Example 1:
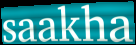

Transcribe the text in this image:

saakha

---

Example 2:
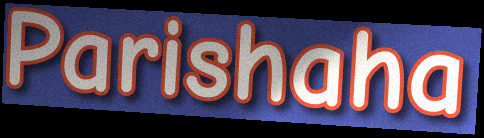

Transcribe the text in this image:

Parishaha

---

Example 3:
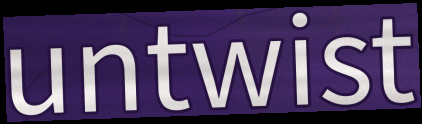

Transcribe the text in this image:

untwist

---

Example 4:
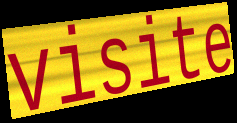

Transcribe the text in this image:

visite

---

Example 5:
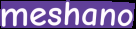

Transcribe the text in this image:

meshano